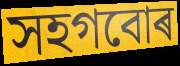
সহগবোৰ